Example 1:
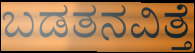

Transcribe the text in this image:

ಬಡತನವಿತ್ತೆ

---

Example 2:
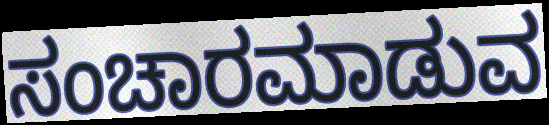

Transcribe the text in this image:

ಸಂಚಾರಮಾಡುವ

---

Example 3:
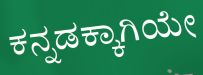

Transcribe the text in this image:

ಕನ್ನಡಕ್ಕಾಗಿಯೇ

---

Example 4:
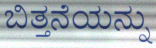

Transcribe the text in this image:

ಬಿತ್ತನೆಯನ್ನು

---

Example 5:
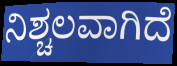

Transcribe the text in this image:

ನಿಶ್ಚಲವಾಗಿದೆ